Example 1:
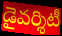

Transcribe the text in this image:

డైవర్శిటీ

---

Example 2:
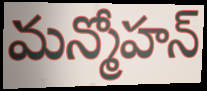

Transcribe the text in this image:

మన్మోహన్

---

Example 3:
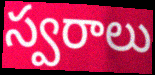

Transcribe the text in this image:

స్వరాలు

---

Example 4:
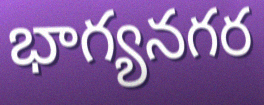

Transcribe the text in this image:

భాగ్యనగర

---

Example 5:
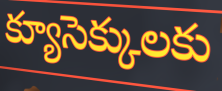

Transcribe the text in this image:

క్యూసెక్కులకు